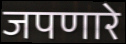
जपणारे